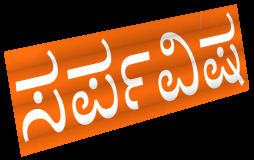
ಸರ್ಪವಿಷ